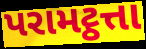
પરામટ્ઠત્તા